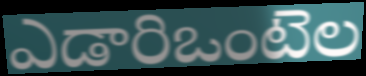
ఎడారిఒంటెల